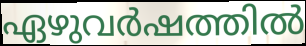
ഏഴുവർഷത്തിൽ